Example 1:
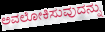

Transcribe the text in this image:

ಅವಲೋಕಿಸುವುದನ್ನು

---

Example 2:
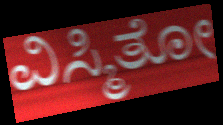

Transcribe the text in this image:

ವಿಸ್ಮಿತೋ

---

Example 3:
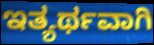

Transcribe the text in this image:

ಇತ್ಯರ್ಥವಾಗಿ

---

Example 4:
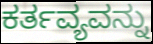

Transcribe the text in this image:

ಕರ್ತವ್ಯವನ್ನು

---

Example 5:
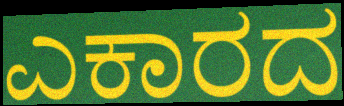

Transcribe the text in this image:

ಎಕಾರದ